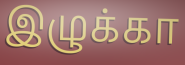
இழுக்கா